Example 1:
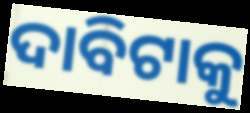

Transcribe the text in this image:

ଦାବିଟାକୁ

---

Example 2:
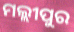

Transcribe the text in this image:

ମଲ୍ଲୀପୁର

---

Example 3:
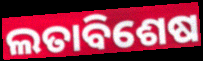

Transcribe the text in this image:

ଲତାବିଶେଷ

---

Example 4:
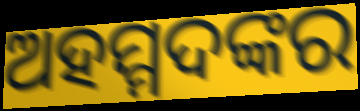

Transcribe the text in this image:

ଅହମ୍ମଦଙ୍କର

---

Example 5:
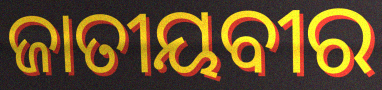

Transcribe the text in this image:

ଜାତୀୟବୀର